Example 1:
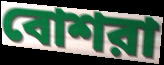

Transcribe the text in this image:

বোশরা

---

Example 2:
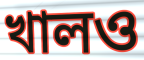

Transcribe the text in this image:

খালও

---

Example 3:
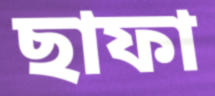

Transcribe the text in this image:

ছাফা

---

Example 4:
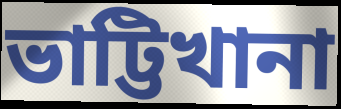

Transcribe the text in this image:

ভাট্টিখানা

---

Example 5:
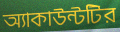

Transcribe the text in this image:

অ্যাকাউন্টটির